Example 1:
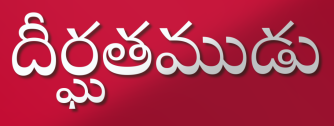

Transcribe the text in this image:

దీర్ఘతముడు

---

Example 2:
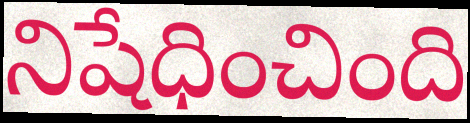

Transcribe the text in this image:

నిషేధించింది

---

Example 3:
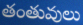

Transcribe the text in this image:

తంతువులు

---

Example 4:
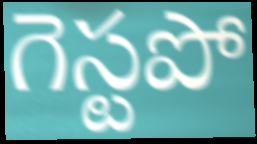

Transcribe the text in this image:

గెస్టపో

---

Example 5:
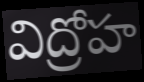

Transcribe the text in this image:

విద్రోహ